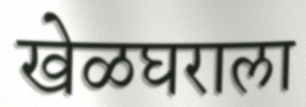
खेळघराला